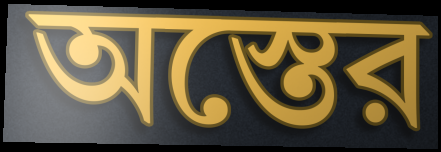
অস্তের